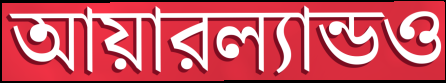
আয়ারল্যান্ডও